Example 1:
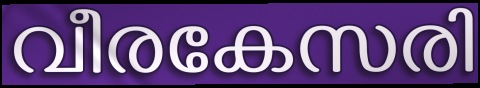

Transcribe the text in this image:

വീരകേസരി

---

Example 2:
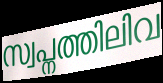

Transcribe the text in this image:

സ്വപ്നത്തിലിവ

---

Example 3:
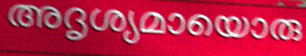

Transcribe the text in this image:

അദൃശ്യമായൊരു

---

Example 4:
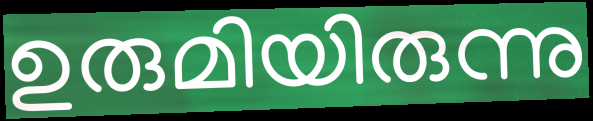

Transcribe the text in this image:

ഉരുമിയിരുന്നു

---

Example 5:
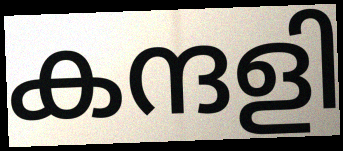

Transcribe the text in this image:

കന്ദളി